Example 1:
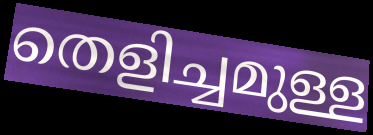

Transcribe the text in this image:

തെളിച്ചമുള്ള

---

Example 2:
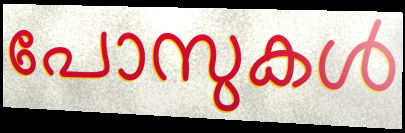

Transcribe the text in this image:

പോസുകൾ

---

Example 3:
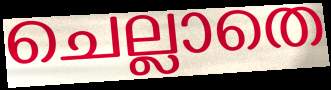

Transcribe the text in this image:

ചെല്ലാതെ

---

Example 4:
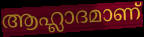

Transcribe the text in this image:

ആഹ്ലാദമാണ്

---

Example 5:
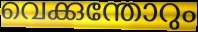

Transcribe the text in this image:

വെക്കുന്തോറും